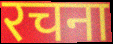
रचना